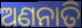
ଅଣନାତି